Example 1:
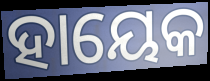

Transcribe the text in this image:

ହାୟେକ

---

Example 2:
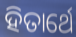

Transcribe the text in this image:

ହିତାର୍ଥେ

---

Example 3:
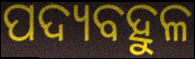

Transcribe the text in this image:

ପଦ୍ୟବହୁଳ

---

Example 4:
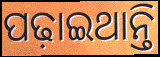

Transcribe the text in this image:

ପଢ଼ାଇଥାନ୍ତି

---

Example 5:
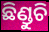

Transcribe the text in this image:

ଛିଣ୍ଡୁଚି